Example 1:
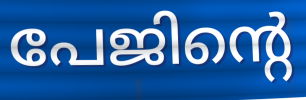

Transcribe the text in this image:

പേജിന്റെ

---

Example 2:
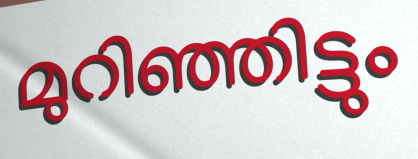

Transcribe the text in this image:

മുറിഞ്ഞിട്ടും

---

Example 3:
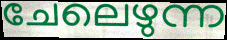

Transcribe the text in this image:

ചേലെഴുന്ന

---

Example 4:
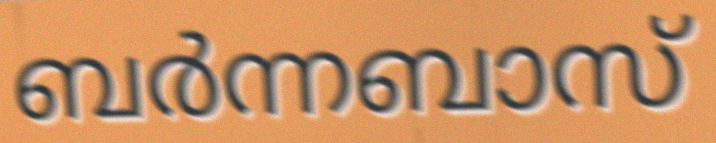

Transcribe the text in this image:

ബർന്നബാസ്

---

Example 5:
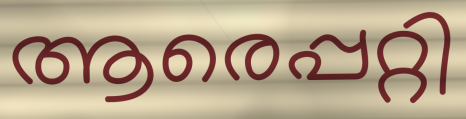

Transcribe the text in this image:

ആരെപ്പറ്റി